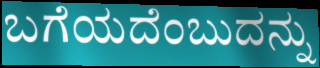
ಬಗೆಯದೆಂಬುದನ್ನು